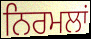
ਨਿਰਮਲਾਂ